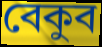
বেকুব